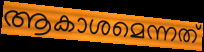
ആകാശമെന്നത്